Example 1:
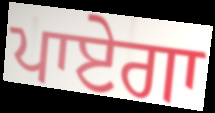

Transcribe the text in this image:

ਪਾਏਗਾ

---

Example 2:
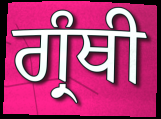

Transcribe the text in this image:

ਗ੍ਰੰਥੀ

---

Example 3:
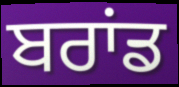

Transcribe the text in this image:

ਬਰਾਂਡ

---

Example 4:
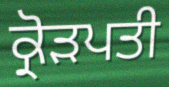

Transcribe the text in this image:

ਕ੍ਰੋੜਪਤੀ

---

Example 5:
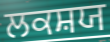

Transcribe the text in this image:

ਲਕਸ਼ਯ